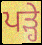
ਪਡ਼੍ਹੇ